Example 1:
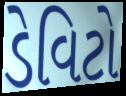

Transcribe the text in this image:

ડેવિટો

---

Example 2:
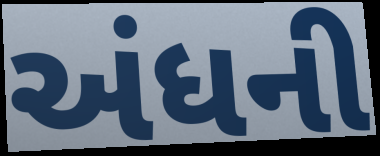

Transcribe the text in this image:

અંધની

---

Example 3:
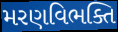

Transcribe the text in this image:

મરણવિભક્તિ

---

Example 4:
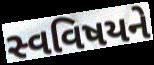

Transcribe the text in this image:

સ્વવિષયને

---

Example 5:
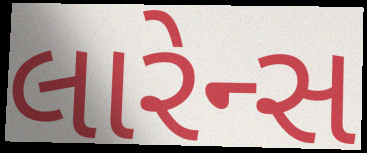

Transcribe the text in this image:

લારેન્સ